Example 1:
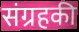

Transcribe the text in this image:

संग्रहकी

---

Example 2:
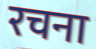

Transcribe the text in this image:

रचना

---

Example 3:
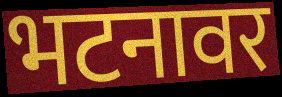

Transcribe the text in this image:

भटनावर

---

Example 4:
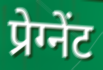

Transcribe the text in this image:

प्रेग्नेंट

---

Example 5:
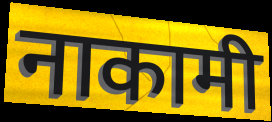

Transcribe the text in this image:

नाकामी